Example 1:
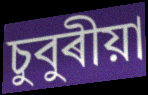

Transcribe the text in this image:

চুবুৰীয়া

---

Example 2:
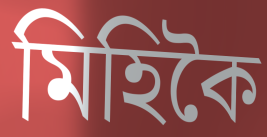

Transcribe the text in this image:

মিহিকৈ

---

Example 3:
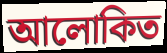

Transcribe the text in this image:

আলোকিত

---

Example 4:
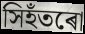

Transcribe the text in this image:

সিহঁতৰো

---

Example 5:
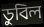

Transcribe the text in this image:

ডুবিল